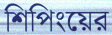
শিপিংয়ের